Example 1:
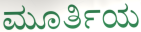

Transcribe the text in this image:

ಮೂರ್ತಿಯ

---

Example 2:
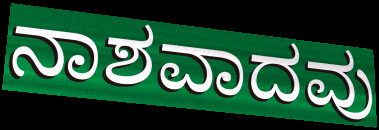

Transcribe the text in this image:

ನಾಶವಾದವು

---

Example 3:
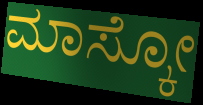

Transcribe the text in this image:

ಮಾಸ್ಕೋ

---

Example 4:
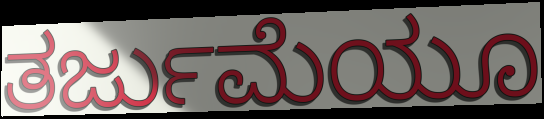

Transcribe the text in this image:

ತರ್ಜುಮೆಯೂ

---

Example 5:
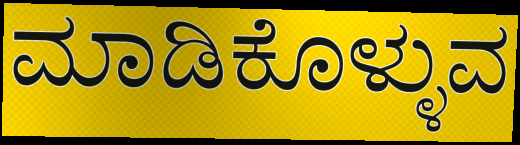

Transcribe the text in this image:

ಮಾಡಿಕೊಳ್ಳುವ